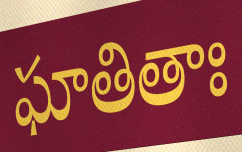
ఘాతితాః